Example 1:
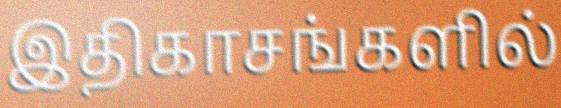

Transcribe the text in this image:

இதிகாசங்களில்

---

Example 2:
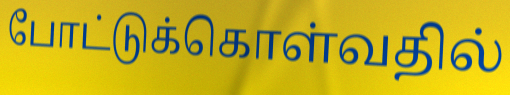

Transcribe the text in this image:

போட்டுக்கொள்வதில்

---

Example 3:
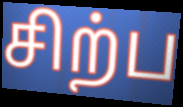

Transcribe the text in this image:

சிற்ப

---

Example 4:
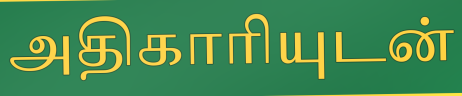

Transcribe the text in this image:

அதிகாரியுடன்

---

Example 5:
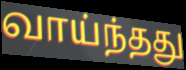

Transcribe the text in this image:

வாய்ந்தது